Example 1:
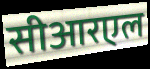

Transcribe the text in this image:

सीआरएल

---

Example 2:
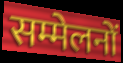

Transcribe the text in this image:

सम्‍मेलनों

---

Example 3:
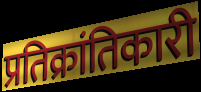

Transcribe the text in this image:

प्रतिक्रांतिकारी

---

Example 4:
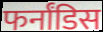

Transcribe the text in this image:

फर्नांडिस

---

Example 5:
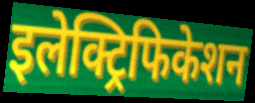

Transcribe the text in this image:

इलेक्ट्रिफिकेशन